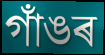
গাঁঙৰ